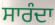
ਸਾਰੰਦਾ